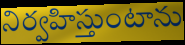
నిర్వహిస్తుంటాను